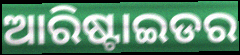
ଆରିଷ୍ଟାଇଡର